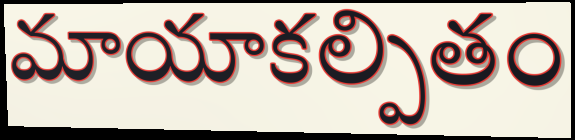
మాయాకల్పితం